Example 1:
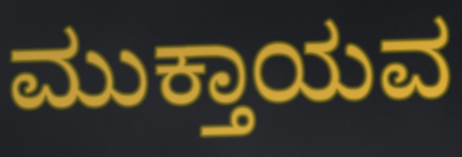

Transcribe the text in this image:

ಮುಕ್ತಾಯವ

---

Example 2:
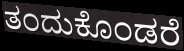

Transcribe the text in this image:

ತಂದುಕೊಂಡರೆ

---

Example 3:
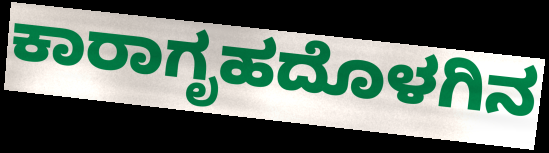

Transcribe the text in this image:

ಕಾರಾಗೃಹದೊಳಗಿನ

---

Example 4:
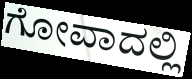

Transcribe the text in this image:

ಗೋವಾದಲ್ಲಿ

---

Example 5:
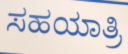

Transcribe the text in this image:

ಸಹಯಾತ್ರಿ